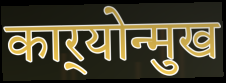
कार्योन्मुख